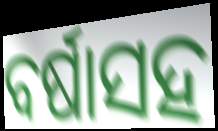
ବର୍ଷାସହ